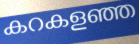
കറകളഞ്ഞ